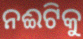
ନଈଟିକୁ